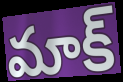
మాక్